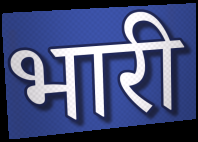
भारी